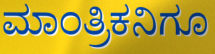
ಮಾಂತ್ರಿಕನಿಗೂ